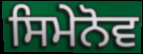
ਸਿਮੇਨੋਵ